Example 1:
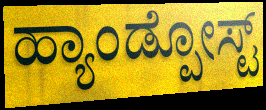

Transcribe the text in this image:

ಹ್ಯಾಂಡ್ಪೋಸ್ಟ್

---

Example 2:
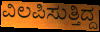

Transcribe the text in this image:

ವಿಲಪಿಸುತ್ತಿದ್ದ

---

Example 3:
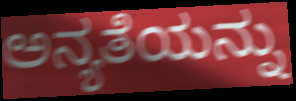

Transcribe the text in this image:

ಅನ್ಯತೆಯನ್ನು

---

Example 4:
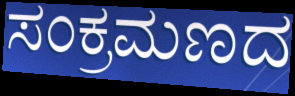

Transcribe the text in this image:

ಸಂಕ್ರಮಣದ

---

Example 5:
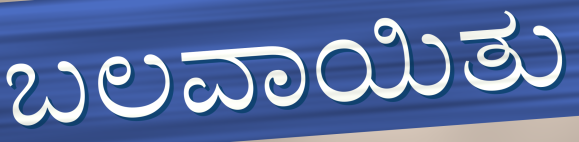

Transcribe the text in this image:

ಬಲವಾಯಿತು